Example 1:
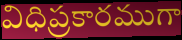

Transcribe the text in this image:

విధిప్రకారముగా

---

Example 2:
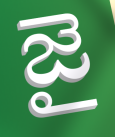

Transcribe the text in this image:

జై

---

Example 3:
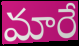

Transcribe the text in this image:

మారే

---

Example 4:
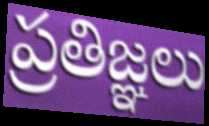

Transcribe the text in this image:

ప్రతిజ్ఞలు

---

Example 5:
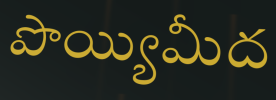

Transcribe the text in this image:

పొయ్యిమీద